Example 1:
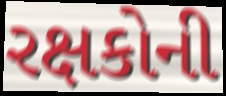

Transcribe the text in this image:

રક્ષકોની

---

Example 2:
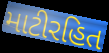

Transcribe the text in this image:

માટીરહિત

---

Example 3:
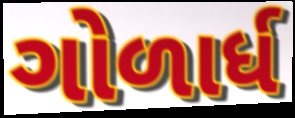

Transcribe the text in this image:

ગોળાર્ધ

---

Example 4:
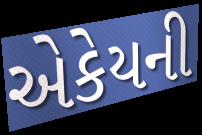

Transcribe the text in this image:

એકેયની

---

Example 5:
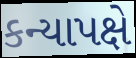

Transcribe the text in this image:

કન્યાપક્ષે